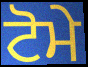
ਟੋਮੇ